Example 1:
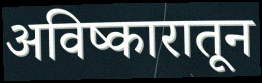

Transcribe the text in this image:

अविष्कारातून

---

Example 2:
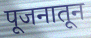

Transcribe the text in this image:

पूजनातून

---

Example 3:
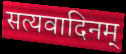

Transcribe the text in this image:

सत्यवादिनम्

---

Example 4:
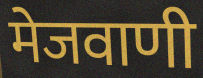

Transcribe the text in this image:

मेजवाणी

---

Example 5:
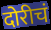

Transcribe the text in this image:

दोरीचं